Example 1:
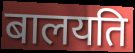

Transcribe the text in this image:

बालयति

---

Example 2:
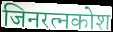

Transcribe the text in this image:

जिनरत्नकोश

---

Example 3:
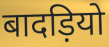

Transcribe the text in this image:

बादड़ियो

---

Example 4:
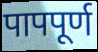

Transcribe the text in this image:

पापपूर्ण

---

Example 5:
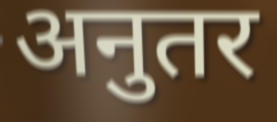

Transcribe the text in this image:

अनुतर